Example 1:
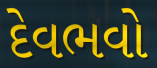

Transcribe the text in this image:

દેવભવો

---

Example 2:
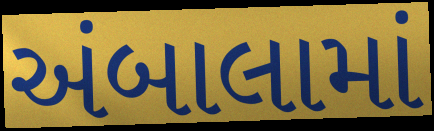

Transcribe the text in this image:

અંબાલામાં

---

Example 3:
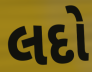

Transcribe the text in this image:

લદો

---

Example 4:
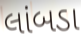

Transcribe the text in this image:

લાંબડા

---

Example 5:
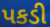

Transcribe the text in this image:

પકડી